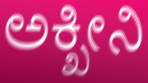
ಅಕ್ಖೀನಿ